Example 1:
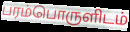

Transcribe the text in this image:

பரம்பொருளிடம்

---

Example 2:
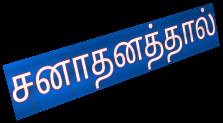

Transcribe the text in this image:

சனாதனத்தால்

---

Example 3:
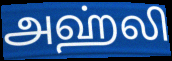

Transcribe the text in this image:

அஹ்லி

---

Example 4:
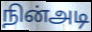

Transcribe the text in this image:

நின்அடி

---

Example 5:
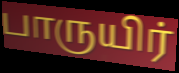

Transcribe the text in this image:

பாருயிர்